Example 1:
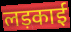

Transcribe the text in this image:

लड़काई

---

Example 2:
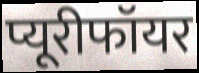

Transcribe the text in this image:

प्यूरीफॉयर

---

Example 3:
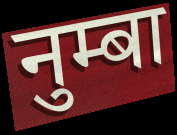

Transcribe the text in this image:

नुम्बा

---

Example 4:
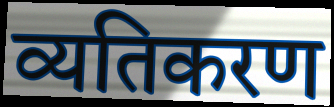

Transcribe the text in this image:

व्यतिकरण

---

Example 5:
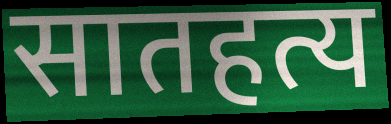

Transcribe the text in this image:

सातहत्य